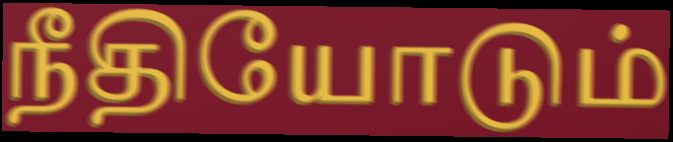
நீதியோடும்